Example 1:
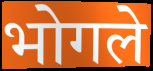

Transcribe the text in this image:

भोगले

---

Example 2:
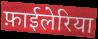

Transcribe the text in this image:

फ़ाईलेरिया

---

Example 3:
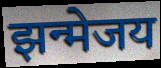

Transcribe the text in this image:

झन्मेजय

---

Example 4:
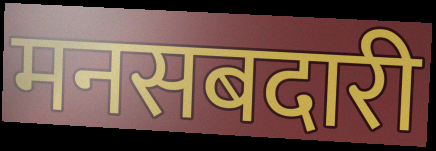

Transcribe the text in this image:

मनसबदारी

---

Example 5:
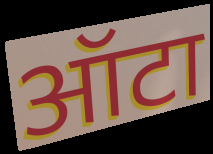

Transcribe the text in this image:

ऑटा